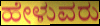
ಹೇಳುವರು